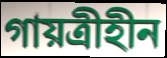
গায়ত্রীহীন